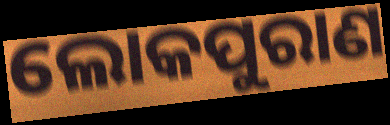
ଲୋକପୁରାଣ